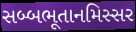
સબ્બભૂતાનમિસ્સર